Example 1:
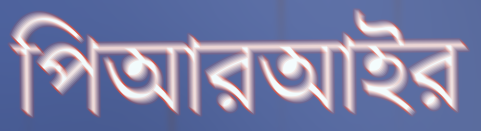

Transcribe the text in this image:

পিআরআইর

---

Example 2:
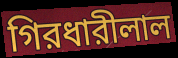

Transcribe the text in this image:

গিরধারীলাল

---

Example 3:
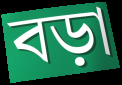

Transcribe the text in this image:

বড়া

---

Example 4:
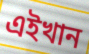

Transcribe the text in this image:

এইখান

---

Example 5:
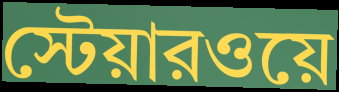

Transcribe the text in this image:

স্টেয়ারওয়ে